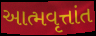
આત્મવૃત્તાંત